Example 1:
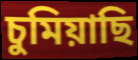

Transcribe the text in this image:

চুমিয়াছি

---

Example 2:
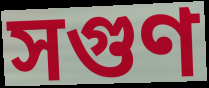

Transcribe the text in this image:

সগুণ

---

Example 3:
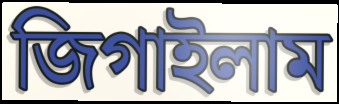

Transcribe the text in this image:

জিগাইলাম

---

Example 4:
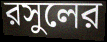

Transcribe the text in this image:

রসুলের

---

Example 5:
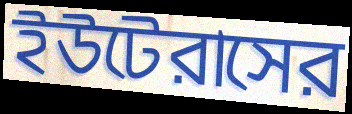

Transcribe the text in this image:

ইউটেরাসের